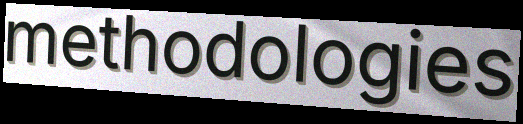
methodologies